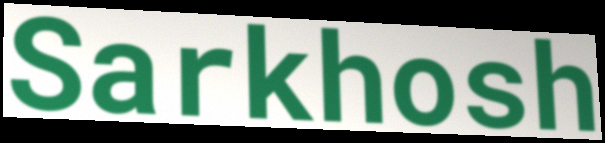
Sarkhosh